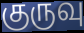
குருவு